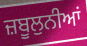
ਜ਼ਬੂਲੁਨੀਆਂ